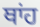
ਥਾਂਹ